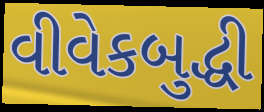
વીવેકબુદ્ધી